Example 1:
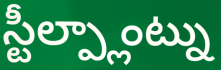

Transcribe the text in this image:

స్టీల్ప్లాంట్ను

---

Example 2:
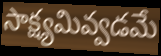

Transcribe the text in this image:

సాక్ష్యమివ్వడమే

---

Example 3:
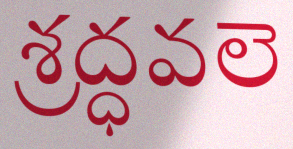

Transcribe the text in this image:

శ్రద్ధవలె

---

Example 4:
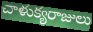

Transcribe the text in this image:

చాళుక్యరాజులు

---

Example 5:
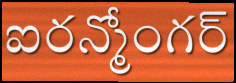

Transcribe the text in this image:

ఐరన్మోంగర్